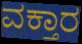
ವಕ್ತಾರ